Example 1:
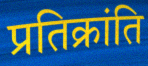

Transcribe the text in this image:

प्रतिक्रांति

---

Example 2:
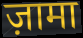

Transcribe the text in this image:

ज़ामा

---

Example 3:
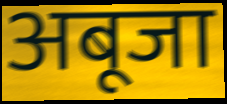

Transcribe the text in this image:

अबूजा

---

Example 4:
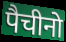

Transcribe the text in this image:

पैचीनो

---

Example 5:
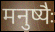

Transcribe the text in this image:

मनुष्यैः